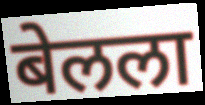
बेलला